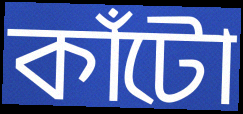
কাঁটো